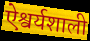
ऐश्वर्यशाली